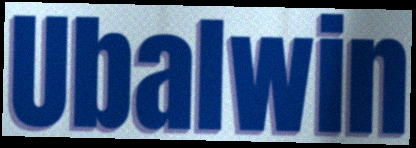
Ubalwin